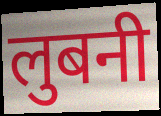
लुबनी